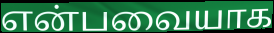
என்பவையாக